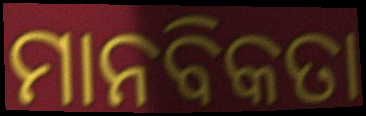
ମାନବିକତା